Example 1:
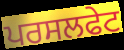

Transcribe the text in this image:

ਪਰਸਲਫੇਟ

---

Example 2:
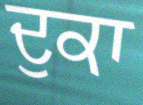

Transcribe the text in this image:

ਦੁਕਾ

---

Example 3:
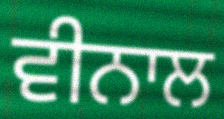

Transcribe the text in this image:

ਵੀਨਾਲ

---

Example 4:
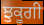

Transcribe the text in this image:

ਝੁਕੂਗੀ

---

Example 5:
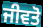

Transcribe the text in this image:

ਜੀਵਤੋ